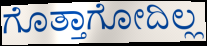
ಗೊತ್ತಾಗೋದಿಲ್ಲ